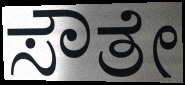
ಸೌತೇ